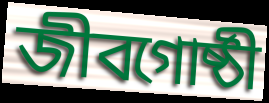
জীবগোষ্ঠী